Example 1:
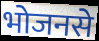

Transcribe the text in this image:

भोजनसे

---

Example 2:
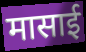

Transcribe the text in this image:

मासाई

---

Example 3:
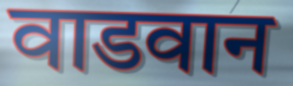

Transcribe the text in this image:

वाडवान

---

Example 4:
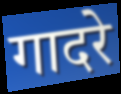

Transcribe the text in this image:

गादरे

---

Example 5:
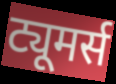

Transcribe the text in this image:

ट्यूमर्स